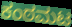
ಕಂಠಮಟ